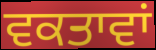
ਵਕਤਾਵਾਂ